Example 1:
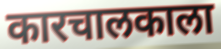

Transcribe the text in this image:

कारचालकाला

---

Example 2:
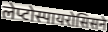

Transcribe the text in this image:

लेप्टोस्पायरोसिसने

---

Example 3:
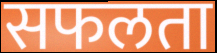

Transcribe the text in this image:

सफलता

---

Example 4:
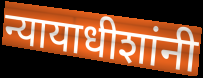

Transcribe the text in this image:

न्यायाधीशांनी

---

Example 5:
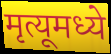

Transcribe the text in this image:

मृत्यूमध्ये